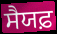
ਸੈਯਫ਼